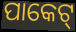
ପାକେଟ୍